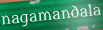
nagamandala